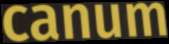
canum